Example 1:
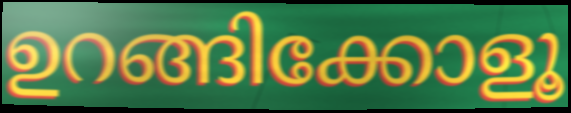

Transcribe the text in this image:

ഉറങ്ങിക്കോളൂ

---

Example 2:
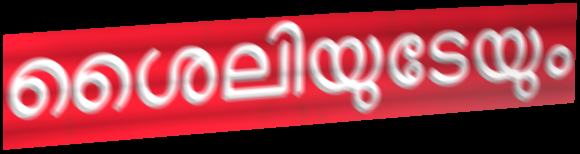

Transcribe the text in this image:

ശൈലിയുടേയും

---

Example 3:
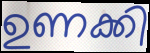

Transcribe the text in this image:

ഉണക്കി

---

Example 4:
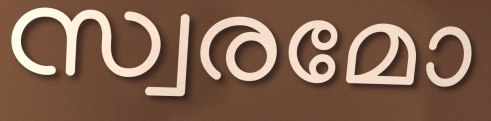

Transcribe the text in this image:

സ്വരമോ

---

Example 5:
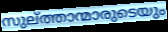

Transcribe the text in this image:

സുല്ത്താന്മാരുടെയും